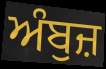
ਅੰਬੁਜ਼